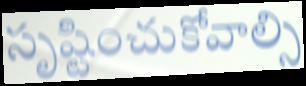
సృష్టించుకోవాల్సి